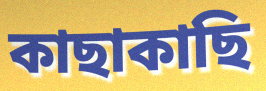
কাছাকাছি